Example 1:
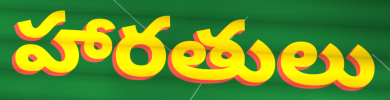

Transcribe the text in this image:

హారతులు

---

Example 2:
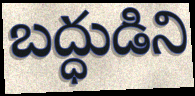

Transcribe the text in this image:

బద్ధుడిని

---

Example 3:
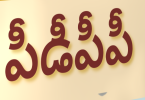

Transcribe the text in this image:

పీడీపీపీ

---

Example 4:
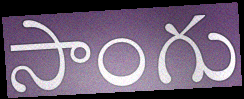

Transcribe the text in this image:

సాంగు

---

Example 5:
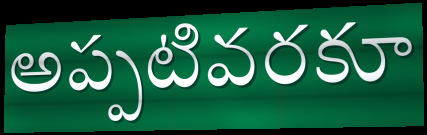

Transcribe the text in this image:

అప్పటివరకూ